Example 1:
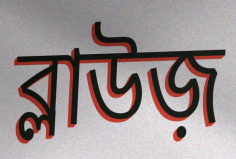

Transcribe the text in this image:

ব্লাউজ়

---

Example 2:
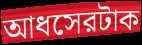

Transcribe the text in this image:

আধসেরটাক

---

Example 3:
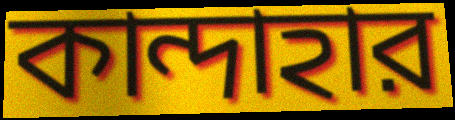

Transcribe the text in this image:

কান্দাহার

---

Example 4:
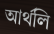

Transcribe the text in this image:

আর্থলি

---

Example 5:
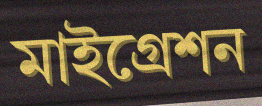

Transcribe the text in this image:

মাইগ্রেশন